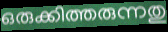
ഒരുക്കിത്തരുന്നതു